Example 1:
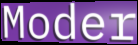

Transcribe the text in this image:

Moder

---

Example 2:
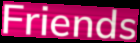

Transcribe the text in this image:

Friends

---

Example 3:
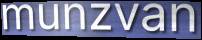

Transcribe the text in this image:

munzvan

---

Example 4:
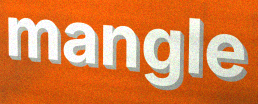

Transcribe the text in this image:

mangle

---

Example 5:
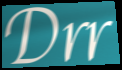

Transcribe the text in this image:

Drr